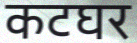
कटघर